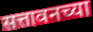
सत्तावनच्या